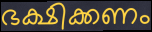
ഭക്ഷിക്കണം